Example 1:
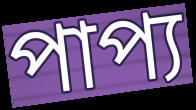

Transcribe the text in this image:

পাপ্য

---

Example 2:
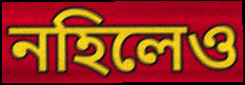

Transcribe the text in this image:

নহিলেও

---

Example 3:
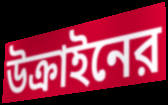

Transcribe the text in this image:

উক্রাইনের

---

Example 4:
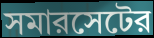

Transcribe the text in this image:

সমারসেটের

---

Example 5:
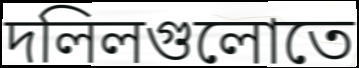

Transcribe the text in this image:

দলিলগুলোতে